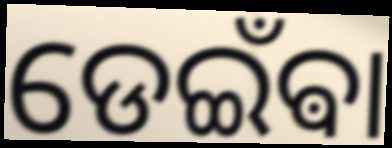
ଡେଇଁଵା